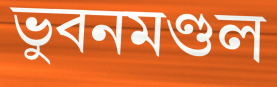
ভুবনমণ্ডল